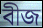
বীজ